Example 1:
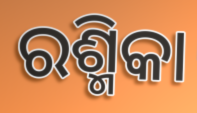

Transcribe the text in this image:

ରଶ୍ମିକା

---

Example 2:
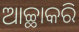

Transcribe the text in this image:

ଆଚ୍ଛାକରି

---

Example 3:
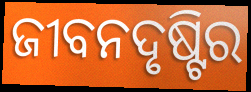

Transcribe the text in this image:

ଜୀବନଦୃଷ୍ଟିର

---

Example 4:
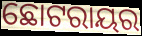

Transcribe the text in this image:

ଛୋଟରାୟର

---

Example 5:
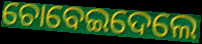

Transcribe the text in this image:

ଚୋବେଇଦେଲେ